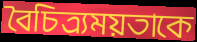
বৈচিত্র্যময়তাকে